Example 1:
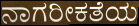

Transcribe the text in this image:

ನಾಗರೀಕತೆಯ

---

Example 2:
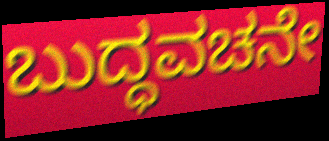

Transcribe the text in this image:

ಬುದ್ಧವಚನೇ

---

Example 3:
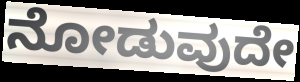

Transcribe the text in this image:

ನೋಡುವುದೇ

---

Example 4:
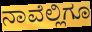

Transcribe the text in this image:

ನಾವೆಲ್ಲಿಗೂ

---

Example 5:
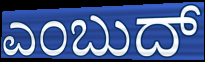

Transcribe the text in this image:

ಎಂಬುದ್